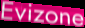
Evizone